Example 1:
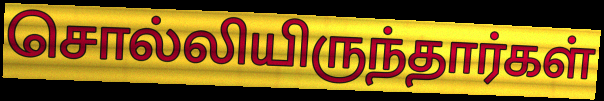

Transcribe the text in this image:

சொல்லியிருந்தார்கள்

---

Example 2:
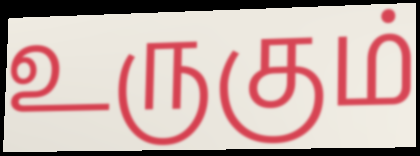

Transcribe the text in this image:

உருகும்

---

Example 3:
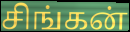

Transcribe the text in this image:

சிங்கன்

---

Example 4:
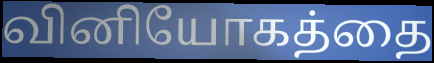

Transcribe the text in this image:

வினியோகத்தை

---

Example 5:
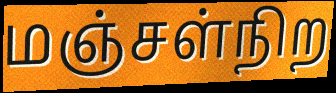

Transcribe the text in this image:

மஞ்சள்நிற